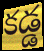
కడ్డ